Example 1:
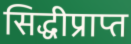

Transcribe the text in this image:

सिद्धीप्राप्त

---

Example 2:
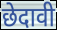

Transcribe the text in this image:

छेदावी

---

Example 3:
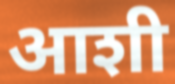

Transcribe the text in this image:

आशी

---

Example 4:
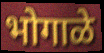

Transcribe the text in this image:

भोगाळे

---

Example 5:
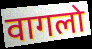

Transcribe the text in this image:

वागलो